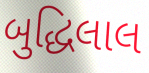
બુદ્ધિલાલ